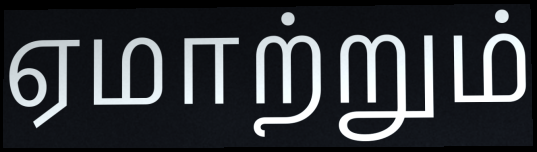
ஏமாற்றும்